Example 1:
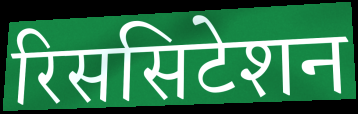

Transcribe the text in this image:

रिससिटेशन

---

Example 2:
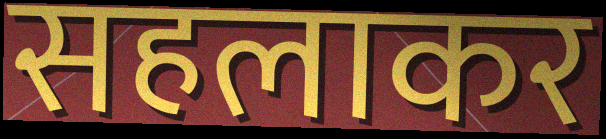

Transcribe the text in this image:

सहलाकर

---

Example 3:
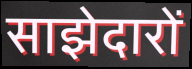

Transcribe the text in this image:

साझेदारों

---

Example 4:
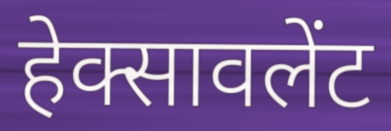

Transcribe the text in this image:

हेक्सावलेंट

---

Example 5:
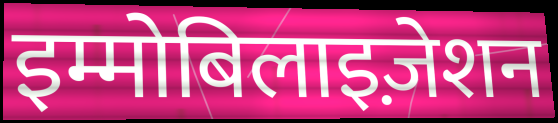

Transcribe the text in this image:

इम्मोबिलाइज़ेशन